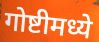
गोष्टीमध्ये